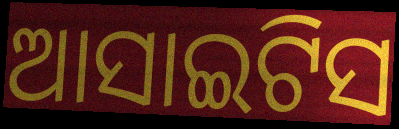
ଆସାଇଟିସ